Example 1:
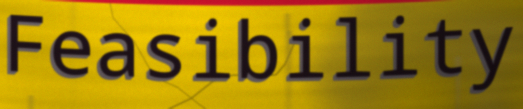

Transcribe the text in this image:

Feasibility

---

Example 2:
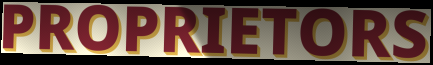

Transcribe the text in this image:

PROPRIETORS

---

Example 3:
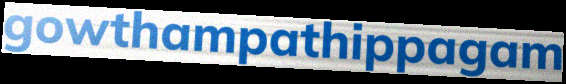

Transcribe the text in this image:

gowthampathippagam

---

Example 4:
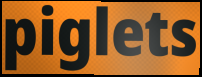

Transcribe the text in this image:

piglets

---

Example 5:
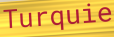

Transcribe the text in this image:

Turquie